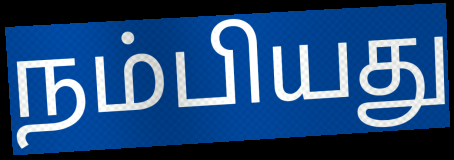
நம்பியது